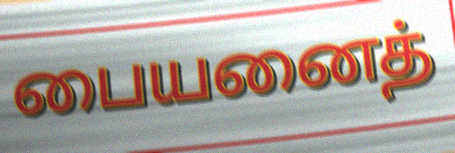
பையனைத்